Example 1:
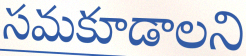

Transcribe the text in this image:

సమకూడాలని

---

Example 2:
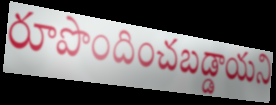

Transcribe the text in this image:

రూపొందించబడ్డాయని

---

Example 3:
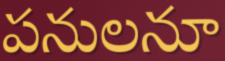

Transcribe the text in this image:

పనులనూ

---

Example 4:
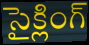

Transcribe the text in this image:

సైక్లింగ్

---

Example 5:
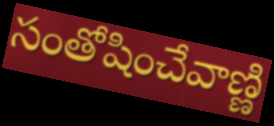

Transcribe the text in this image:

సంతోషించేవాణ్ణి